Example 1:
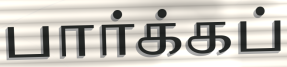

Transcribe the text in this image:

பார்க்கப்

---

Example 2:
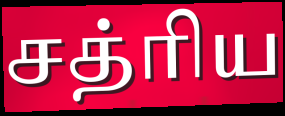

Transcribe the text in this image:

சத்ரிய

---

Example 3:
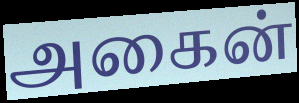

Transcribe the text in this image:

அகைன்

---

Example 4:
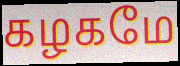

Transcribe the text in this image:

கழகமே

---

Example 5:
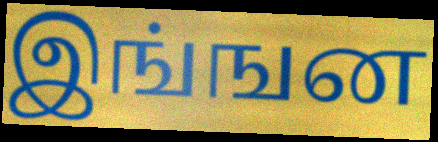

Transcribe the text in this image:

இங்ஙன